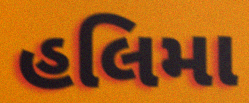
હલિમા